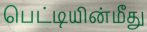
பெட்டியின்மீது